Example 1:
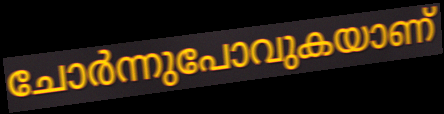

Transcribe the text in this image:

ചോർന്നുപോവുകയാണ്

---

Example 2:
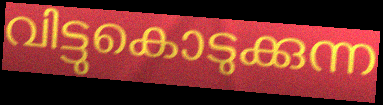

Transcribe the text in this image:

വിട്ടുകൊടുക്കുന്ന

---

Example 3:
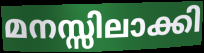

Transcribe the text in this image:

മനസ്സിലാക്കി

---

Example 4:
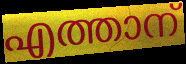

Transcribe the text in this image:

എത്താന്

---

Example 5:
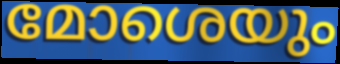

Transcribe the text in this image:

മോശെയും